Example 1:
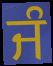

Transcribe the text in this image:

ਜੰ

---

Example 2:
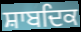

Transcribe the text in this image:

ਸ਼ਾਬਦਿਕ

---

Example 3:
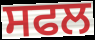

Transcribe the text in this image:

ਸਫਲ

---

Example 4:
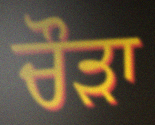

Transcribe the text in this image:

ਚੌੜਾ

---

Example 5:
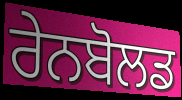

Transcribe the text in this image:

ਰੇਨਬੋਲਡ